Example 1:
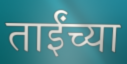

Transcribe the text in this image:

ताईंच्या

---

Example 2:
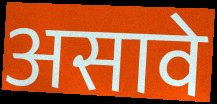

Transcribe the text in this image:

असावे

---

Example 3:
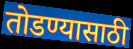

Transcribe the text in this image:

तोडण्यासाठी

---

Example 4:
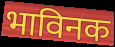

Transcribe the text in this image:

भाविनक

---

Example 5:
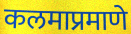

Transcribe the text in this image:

कलमाप्रमाणे